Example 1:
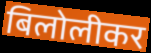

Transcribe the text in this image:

बिलोलीकर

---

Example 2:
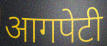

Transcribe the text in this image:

आगपेटी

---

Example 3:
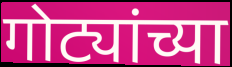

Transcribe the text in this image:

गोट्यांच्या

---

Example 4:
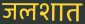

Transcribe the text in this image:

जलशात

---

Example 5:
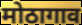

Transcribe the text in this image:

मोठागाव